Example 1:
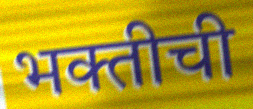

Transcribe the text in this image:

भक्तीची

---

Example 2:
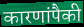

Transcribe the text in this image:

कारणांपैकी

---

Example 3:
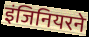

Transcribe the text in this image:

इंजिनियरने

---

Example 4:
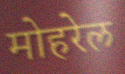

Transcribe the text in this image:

मोहरेल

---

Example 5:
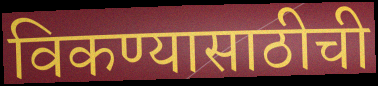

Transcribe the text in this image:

विकण्यासाठीची